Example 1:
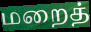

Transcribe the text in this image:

மறைத்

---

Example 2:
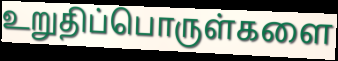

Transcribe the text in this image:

உறுதிப்பொருள்களை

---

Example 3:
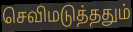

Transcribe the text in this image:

செவிமடுத்ததும்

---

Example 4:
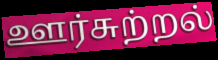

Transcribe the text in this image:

ஊர்சுற்றல்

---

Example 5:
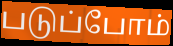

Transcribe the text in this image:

படுப்போம்